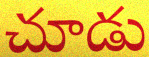
చూడు